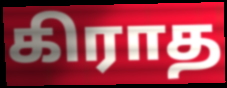
கிராத